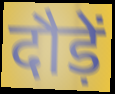
दौड़ें